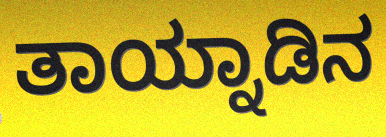
ತಾಯ್ನಾಡಿನ